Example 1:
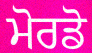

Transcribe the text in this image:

ਮੋਰਡੋ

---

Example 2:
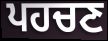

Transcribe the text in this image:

ਪਹਚਣ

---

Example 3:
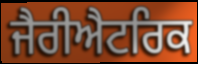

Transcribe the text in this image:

ਜੈਰੀਐਟਰਿਕ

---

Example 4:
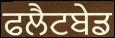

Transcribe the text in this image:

ਫਲੈਟਬੇਡ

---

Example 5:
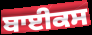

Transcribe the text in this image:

ਬਾਈਕਸ